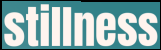
stillness